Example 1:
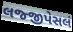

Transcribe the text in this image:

લજ્જીપેસલં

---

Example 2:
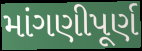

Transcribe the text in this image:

માંગણીપૂર્ણ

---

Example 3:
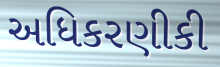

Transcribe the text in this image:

અધિકરણીકી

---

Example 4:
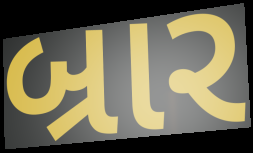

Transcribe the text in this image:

બ્રાર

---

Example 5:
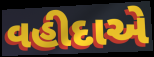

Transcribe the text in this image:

વહીદાએ